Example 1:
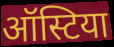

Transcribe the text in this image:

ऑस्टिया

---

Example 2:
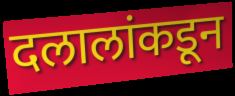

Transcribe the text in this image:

दलालांकडून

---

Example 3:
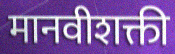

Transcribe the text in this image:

मानवीशक्ती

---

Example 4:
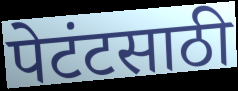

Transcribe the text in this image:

पेटंटसाठी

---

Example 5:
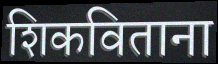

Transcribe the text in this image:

शिकविताना